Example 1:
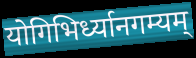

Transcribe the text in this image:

योगिभिर्ध्यानगम्यम्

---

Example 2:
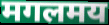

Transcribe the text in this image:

मगलमय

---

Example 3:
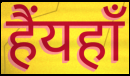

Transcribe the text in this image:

हैंयहाँ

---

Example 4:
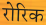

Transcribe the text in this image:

रोरिक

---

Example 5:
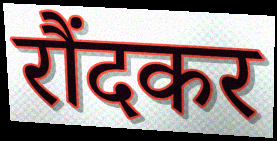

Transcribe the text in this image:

रौंदकर